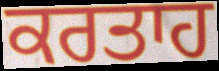
ਕਰਤਾਹ